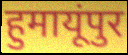
हुमायूंपुर